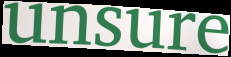
unsure